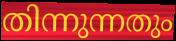
തിന്നുന്നതും